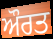
ਔਰਤ